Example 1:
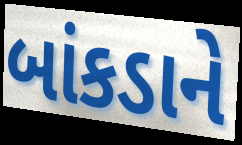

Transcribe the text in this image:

બાંકડાને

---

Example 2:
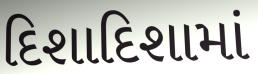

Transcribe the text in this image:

દિશાદિશામાં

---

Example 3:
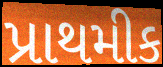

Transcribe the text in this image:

પ્રાથમીક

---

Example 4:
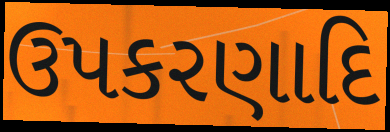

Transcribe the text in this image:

ઉપકરણાદિ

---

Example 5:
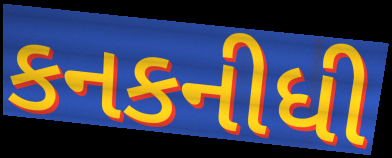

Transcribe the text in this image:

કનકનીધી